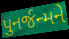
પુનર્જન્મને